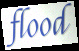
flood